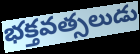
భక్తవత్సలుడు